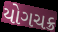
યોગચક્ર